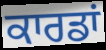
ਕਾਰਡਾਂ